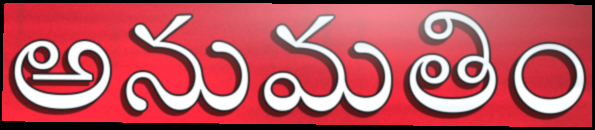
అనుమతిం